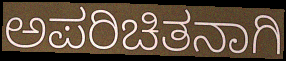
ಅಪರಿಚಿತನಾಗಿ